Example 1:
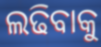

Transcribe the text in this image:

ଲଢିବାକୁ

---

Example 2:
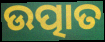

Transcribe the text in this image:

ଉତ୍ପାତ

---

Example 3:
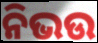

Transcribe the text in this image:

ନିଭଉ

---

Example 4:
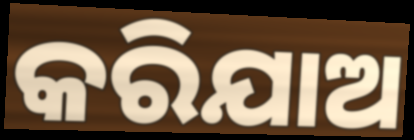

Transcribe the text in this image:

କରିଯାଅ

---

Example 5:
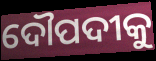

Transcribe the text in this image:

ଦୌପଦୀକୁ